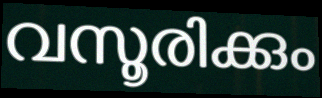
വസൂരിക്കും